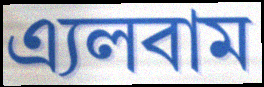
এ্যলবাম